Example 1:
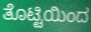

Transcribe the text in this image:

ತೊಟ್ಟಿಯಿಂದ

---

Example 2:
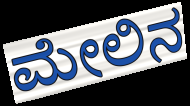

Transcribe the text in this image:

ಮೇಲಿನ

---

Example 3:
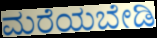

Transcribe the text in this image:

ಮರೆಯಬೇಡಿ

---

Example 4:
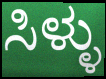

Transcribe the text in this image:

ಸಿಳ್ಳು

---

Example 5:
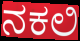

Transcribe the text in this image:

ನಕಲಿ